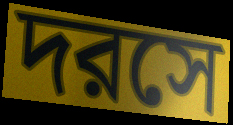
দরসে